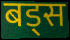
बड्स